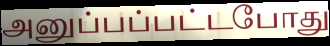
அனுப்பப்பட்டபோது